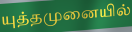
யுத்தமுனையில்